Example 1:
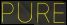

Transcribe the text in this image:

PURE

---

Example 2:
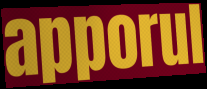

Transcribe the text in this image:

apporul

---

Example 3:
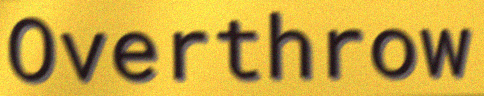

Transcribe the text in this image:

Overthrow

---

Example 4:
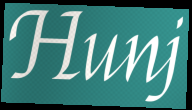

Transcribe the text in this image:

Hunj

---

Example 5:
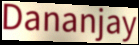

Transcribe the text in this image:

Dananjay